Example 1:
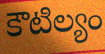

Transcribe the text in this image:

కౌటిల్యం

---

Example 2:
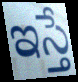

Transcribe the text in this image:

ఇస్తే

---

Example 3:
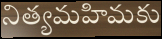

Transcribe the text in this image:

నిత్యమహిమకు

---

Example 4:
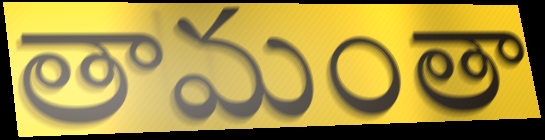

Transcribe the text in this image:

తామంతా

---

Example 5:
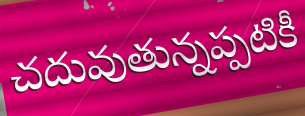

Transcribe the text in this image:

చదువుతున్నప్పటికీ